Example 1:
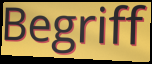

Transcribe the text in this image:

Begriff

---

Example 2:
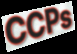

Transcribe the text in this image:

CCPs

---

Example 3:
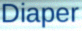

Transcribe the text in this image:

Diaper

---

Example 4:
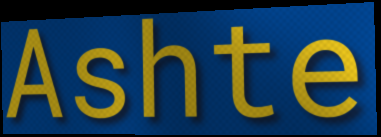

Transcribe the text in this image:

Ashte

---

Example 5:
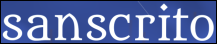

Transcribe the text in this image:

sanscrito